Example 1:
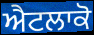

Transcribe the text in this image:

ਐਟਲਾਕੋ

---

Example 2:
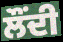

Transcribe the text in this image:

ਲੌਂਦੀ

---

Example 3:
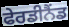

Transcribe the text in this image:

ਫੇਰਡੀਨੈਂਡ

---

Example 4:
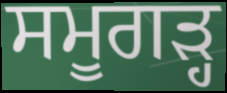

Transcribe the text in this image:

ਸਮੂਗੜ੍ਹ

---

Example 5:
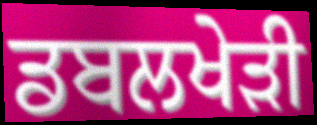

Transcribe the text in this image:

ਡਬਲਖੇੜੀ